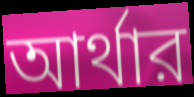
আর্থার